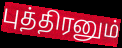
புத்திரனும்